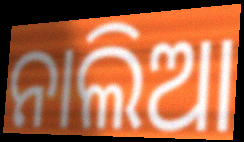
ନାଲିଆ